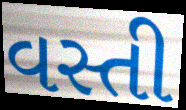
વસ્તી